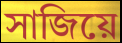
সাজিয়ে